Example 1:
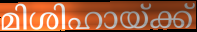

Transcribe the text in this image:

മിശിഹായ്ക്ക്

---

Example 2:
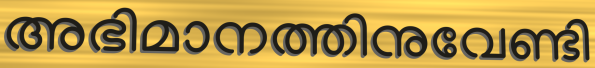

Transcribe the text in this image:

അഭിമാനത്തിനുവേണ്ടി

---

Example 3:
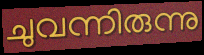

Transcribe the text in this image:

ചുവന്നിരുന്നു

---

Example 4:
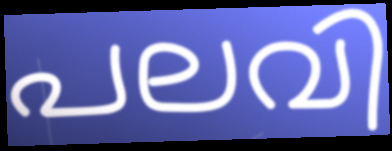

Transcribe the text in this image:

പലവി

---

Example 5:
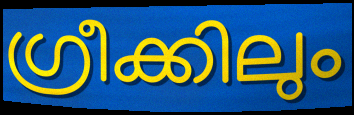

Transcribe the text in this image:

ഗ്രീക്കിലും